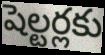
షెల్టర్లకు